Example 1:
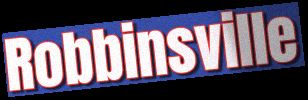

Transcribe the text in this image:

Robbinsville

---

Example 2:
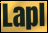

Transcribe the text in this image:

Lapl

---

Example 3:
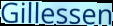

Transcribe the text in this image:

Gillessen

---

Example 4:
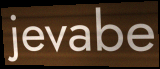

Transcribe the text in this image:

jevabe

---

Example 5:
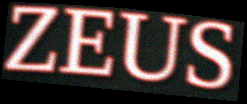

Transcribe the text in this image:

ZEUS